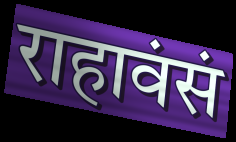
राहावंसं